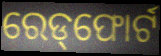
ରେଡ୍‌ଫୋର୍ଟ